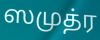
ஸமுத்ர